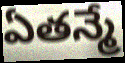
ఏతన్మే